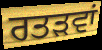
ਰਤੜਵਾਂ